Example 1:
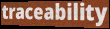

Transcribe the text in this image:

traceability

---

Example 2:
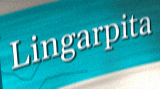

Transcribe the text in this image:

Lingarpita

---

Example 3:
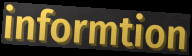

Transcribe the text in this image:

informtion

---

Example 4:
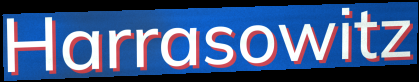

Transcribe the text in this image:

Harrasowitz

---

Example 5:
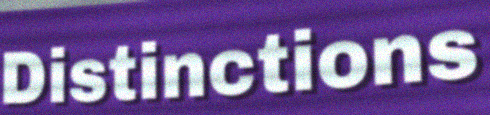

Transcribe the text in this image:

Distinctions